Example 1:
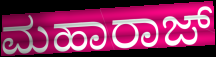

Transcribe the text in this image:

ಮಹಾರಾಜ್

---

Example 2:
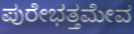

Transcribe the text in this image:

ಪುರೇಭತ್ತಮೇವ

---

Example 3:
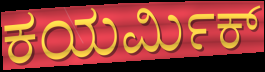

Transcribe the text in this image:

ಕಯರ್ಮಿಕ್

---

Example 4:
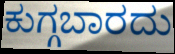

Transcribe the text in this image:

ಕುಗ್ಗಬಾರದು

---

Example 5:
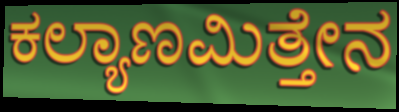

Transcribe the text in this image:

ಕಲ್ಯಾಣಮಿತ್ತೇನ